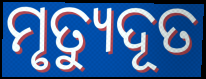
ମୃତ୍ୟୁଦୂତ